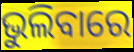
ଭୁଲିବାରେ